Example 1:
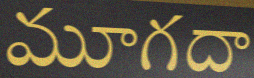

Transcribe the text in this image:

మూగదా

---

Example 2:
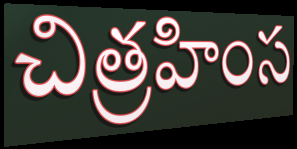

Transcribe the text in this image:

చిత్రహింస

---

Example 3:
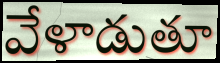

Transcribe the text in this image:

వేళాడుతూ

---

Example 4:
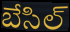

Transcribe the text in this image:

బేసిల్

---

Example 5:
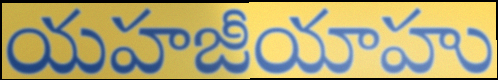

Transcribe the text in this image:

యహజీయాహు